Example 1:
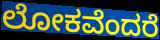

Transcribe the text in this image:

ಲೋಕವೆಂದರೆ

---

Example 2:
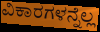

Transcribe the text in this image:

ವಿಕಾರಗಳನ್ನೆಲ್ಲ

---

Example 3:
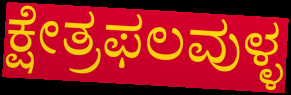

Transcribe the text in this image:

ಕ್ಷೇತ್ರಫಲವುಳ್ಳ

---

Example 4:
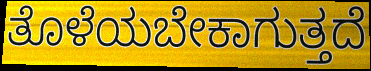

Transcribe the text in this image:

ತೊಳೆಯಬೇಕಾಗುತ್ತದೆ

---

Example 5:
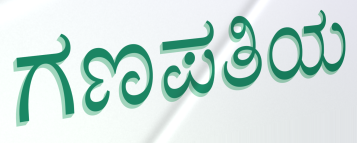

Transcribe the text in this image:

ಗಣಪತಿಯ